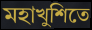
মহাখুশিতে